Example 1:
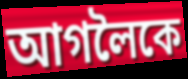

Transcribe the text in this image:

আগলৈকে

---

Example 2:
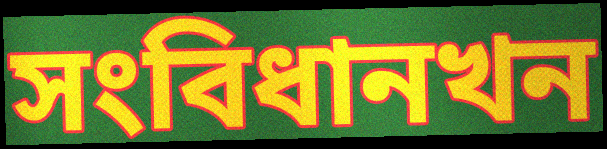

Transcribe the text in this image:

সংবিধানখন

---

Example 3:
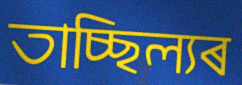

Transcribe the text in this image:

তাচ্ছিল্যৰ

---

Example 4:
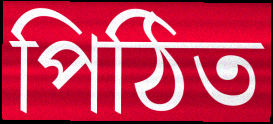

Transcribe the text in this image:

পিঠিত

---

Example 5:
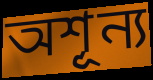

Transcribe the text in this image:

অশূন্য